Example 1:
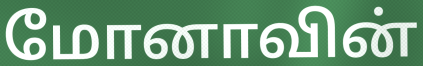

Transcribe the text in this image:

மோனாவின்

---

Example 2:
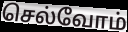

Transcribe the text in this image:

செல்வோம்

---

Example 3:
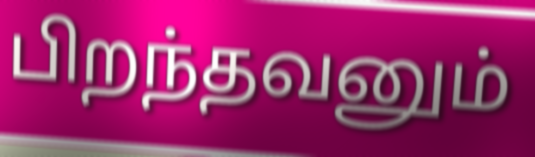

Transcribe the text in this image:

பிறந்தவனும்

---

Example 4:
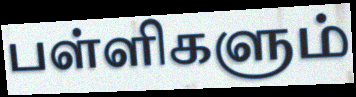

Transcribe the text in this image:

பள்ளிகளும்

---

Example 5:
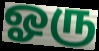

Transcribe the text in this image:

ஓரு